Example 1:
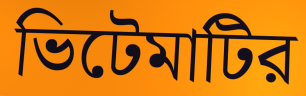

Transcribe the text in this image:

ভিটেমাটির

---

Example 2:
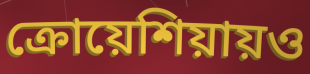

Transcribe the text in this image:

ক্রোয়েশিয়ায়ও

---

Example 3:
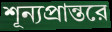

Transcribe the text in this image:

শূন্যপ্রান্তরে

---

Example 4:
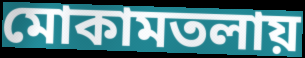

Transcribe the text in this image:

মোকামতলায়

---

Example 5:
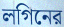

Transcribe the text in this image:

লগিনের